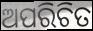
ଅପରିଚିତ